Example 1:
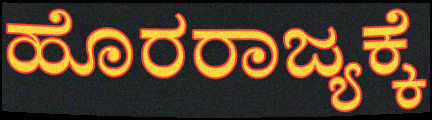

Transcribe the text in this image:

ಹೊರರಾಜ್ಯಕ್ಕೆ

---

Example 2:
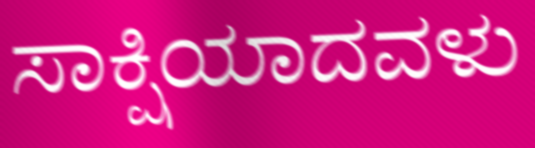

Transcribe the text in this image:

ಸಾಕ್ಷಿಯಾದವಳು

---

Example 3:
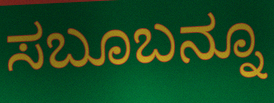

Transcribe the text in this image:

ಸಬೂಬನ್ನೂ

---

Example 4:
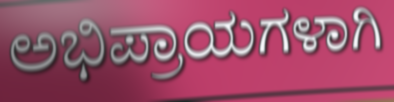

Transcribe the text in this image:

ಅಭಿಪ್ರಾಯಗಳಾಗಿ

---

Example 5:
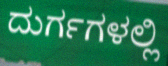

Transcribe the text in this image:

ದುರ್ಗಗಳಲ್ಲಿ